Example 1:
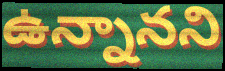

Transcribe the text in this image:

ఉన్నానని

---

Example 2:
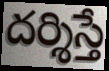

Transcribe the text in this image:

దర్శిస్తే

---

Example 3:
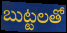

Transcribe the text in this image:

బుట్టలతో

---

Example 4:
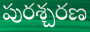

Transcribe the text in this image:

పురశ్చరణ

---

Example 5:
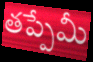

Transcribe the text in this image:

తప్పేమీ